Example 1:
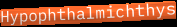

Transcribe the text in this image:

Hypophthalmichthys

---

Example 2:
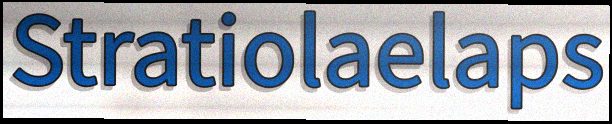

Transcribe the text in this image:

Stratiolaelaps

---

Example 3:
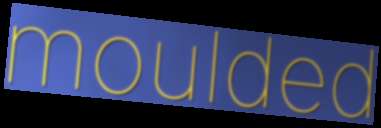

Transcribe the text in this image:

moulded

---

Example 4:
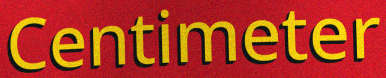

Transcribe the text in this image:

Centimeter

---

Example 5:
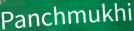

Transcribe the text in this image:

Panchmukhi